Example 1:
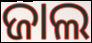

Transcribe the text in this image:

ଜାଲ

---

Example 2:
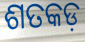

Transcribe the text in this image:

ଶତକଡ଼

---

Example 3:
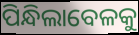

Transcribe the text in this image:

ପିନ୍ଧିଲାବେଳକୁ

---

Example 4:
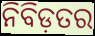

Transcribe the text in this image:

ନିବିଡ଼ତର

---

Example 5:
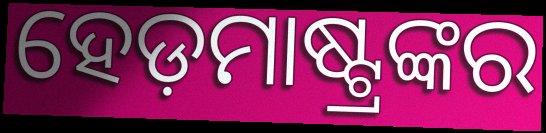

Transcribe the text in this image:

ହେଡ଼ମାଷ୍ଟ୍ରଙ୍କର